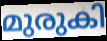
മുരുകി